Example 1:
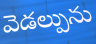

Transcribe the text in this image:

వెడల్పును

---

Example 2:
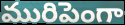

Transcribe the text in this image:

మురిపెంగా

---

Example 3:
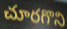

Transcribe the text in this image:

చూరగొని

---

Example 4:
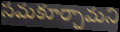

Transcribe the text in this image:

సమకూర్చామని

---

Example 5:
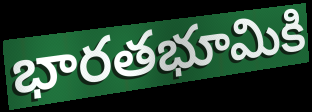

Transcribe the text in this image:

భారతభూమికి